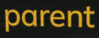
parent